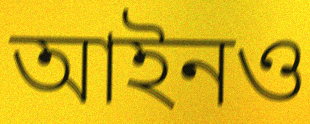
আইনও